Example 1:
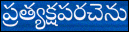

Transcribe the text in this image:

ప్రత్యక్షపరచెను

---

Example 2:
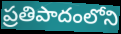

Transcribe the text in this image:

ప్రతిపాదంలోని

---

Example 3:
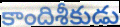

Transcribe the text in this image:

కాందిశీకుడు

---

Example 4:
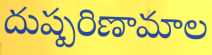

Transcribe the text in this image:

దుష్పరిణామాల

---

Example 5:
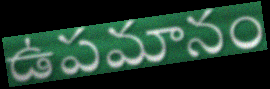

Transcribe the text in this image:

ఉపమానం